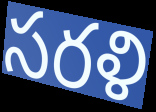
సరళి